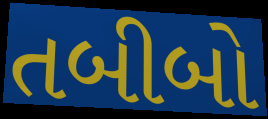
તબીબો